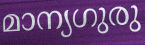
മാന്യഗുരു